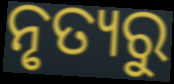
ନୃତ୍ୟରୁ